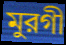
মুরগী